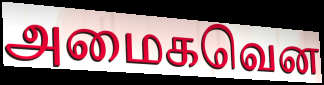
அமைகவென